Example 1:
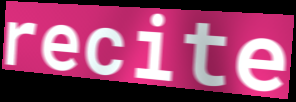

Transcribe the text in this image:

recite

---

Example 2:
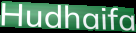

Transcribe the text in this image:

Hudhaifa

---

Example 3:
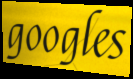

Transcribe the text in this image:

googles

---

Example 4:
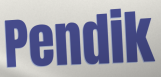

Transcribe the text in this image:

Pendik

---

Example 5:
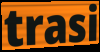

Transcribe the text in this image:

trasi